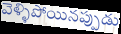
వెళ్ళిపోయినప్పుడు